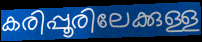
കരിപ്പൂരിലേക്കുള്ള